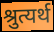
श्रुत्यर्थ